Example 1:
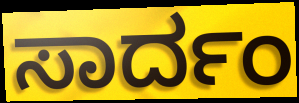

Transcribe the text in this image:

ಸಾರ್ದಂ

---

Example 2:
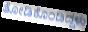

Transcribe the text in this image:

ತೋಡಿಕೊಂಡಿದ್ದಳು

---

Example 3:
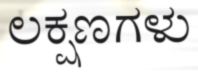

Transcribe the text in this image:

ಲಕ್ಷಣಗಳು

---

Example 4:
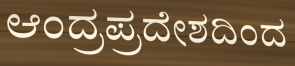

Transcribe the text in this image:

ಆಂದ್ರಪ್ರದೇಶದಿಂದ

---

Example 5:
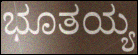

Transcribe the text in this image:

ಭೂತಯ್ಯ